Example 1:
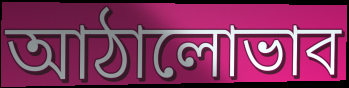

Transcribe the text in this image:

আঠালোভাব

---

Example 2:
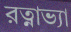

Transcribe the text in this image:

রত্নাভ্যা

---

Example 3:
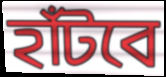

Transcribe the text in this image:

হাঁটবে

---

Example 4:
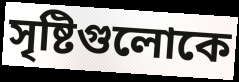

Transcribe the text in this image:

সৃষ্টিগুলোকে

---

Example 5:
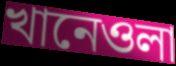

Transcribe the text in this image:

খানেওলা